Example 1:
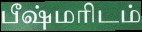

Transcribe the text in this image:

பீஷ்மரிடம்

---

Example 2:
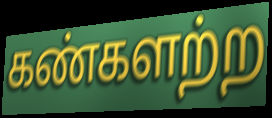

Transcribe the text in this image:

கண்களற்ற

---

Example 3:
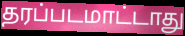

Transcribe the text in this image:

தரப்படமாட்டாது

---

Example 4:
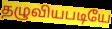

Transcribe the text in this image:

தழுவியபடியே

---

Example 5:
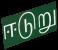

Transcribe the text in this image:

ஈடுறு